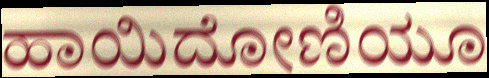
ಹಾಯಿದೋಣಿಯೂ